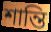
শান্তি